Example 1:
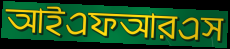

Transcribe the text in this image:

আইএফআরএস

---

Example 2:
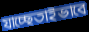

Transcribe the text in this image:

যাচ্ছেতাইভাবে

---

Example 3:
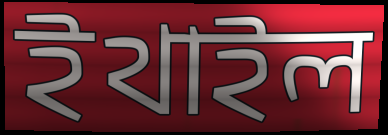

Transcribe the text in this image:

ইথাইল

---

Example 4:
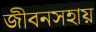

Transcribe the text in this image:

জীবনসহায়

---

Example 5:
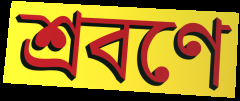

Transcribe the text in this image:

শ্রবণে